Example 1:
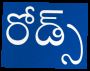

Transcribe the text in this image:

రోడ్స్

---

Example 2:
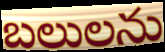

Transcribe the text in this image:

బలులను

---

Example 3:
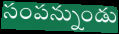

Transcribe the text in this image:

సంపన్నుండు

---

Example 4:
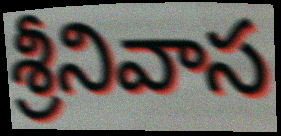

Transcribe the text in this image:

శ్రీనివాస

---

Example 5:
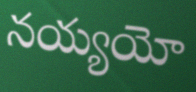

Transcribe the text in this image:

నయ్యయో